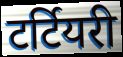
टर्टियरी